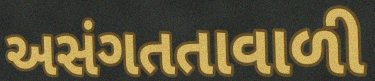
અસંગતતાવાળી